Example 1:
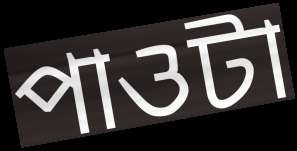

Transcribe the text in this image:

পাওটা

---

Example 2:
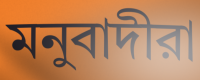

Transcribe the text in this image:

মনুবাদীরা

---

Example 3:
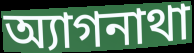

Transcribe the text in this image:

অ্যাগনাথা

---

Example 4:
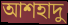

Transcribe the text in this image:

আশহাদু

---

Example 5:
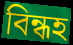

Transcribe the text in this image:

বিন্ধহ